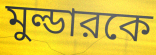
মুল্ডারকে